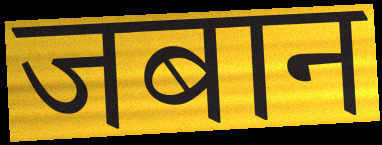
जबान